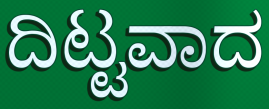
ದಿಟ್ಟವಾದ